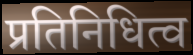
प्रतिनिधित्व